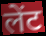
लेंट